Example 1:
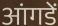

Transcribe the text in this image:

आंगडें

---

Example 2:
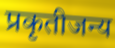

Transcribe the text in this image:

प्रकृतीजन्य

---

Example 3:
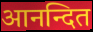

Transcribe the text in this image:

आनन्दित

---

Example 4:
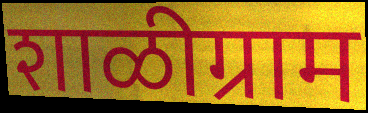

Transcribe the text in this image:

शाळीग्राम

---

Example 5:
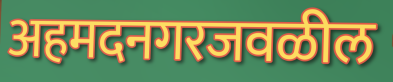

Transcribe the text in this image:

अहमदनगरजवळील